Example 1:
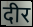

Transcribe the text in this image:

दीर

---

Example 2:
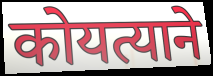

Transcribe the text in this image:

कोयत्याने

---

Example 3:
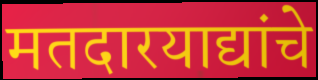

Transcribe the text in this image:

मतदारयाद्यांचे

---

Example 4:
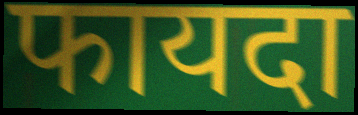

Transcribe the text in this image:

फायदा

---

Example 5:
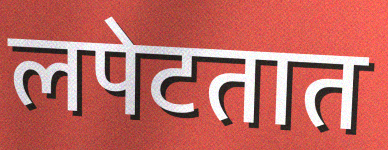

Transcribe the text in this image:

लपेटतात